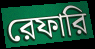
রেফারি